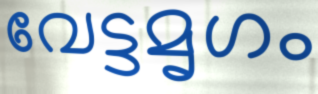
വേട്ടമൃഗം